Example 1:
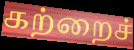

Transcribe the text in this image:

கற்றைச்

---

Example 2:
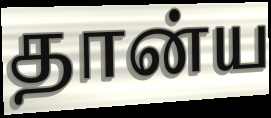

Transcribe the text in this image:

தான்ய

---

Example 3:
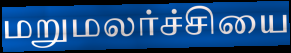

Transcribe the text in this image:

மறுமலர்ச்சியை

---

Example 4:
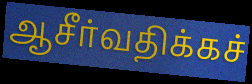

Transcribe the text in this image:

ஆசீர்வதிக்கச்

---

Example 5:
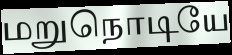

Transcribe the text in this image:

மறுநொடியே